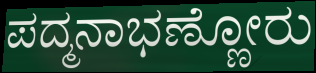
ಪದ್ಮನಾಭಣ್ಣೋರು